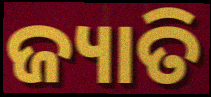
ଜ୍ୟାତି